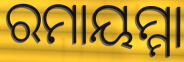
ରମାୟମ୍ମା